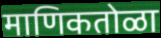
माणिकतोळा